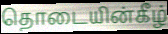
தொடையின்கீழ்